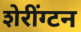
शेरींग्टन